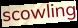
scowling